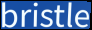
bristle